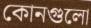
কোনগুলো